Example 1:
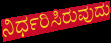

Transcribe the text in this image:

ನಿರ್ಧರಿಸಿರುವುದು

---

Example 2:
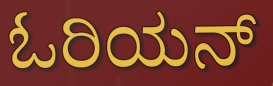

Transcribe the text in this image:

ಓರಿಯನ್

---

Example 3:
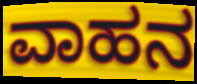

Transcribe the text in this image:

ವಾಹನ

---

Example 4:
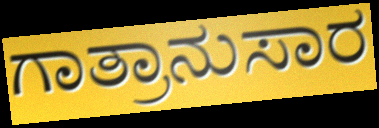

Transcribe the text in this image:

ಗಾತ್ರಾನುಸಾರ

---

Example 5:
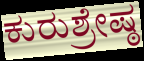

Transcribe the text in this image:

ಕುರುಶ್ರೇಷ್ಠ